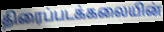
திரைப்படக்கலையின்